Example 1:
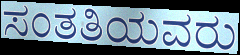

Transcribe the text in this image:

ಸಂತತಿಯವರು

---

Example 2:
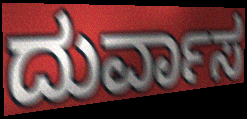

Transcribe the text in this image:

ದುರ್ವಾಸ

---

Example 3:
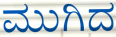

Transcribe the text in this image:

ಮುಗಿದ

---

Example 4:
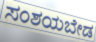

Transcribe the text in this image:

ಸಂಶಯಬೇಡ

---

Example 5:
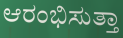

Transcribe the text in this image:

ಆರಂಭಿಸುತ್ತಾ